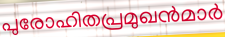
പുരോഹിതപ്രമുഖൻമാർ